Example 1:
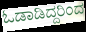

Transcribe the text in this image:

ಓಡಾಡಿದ್ದರಿಂದ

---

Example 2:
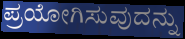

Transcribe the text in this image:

ಪ್ರಯೋಗಿಸುವುದನ್ನು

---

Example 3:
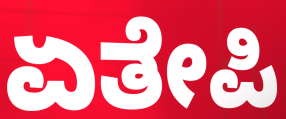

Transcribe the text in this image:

ಏತೇಪಿ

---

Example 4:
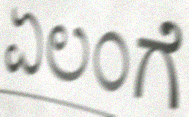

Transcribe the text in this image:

ಏಲಂಗೆ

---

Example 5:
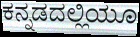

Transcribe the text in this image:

ಕನ್ನಡದಲ್ಲಿಯೂ